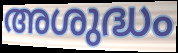
അശുദ്ധം